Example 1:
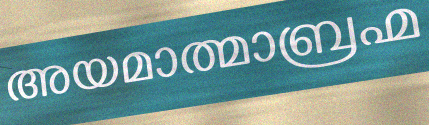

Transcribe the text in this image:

അയമാത്മാബ്രഹ്മ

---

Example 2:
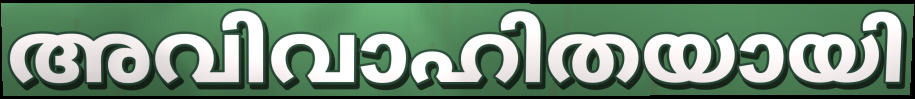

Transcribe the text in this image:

അവിവാഹിതയായി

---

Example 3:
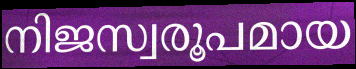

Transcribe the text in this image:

നിജസ്വരൂപമായ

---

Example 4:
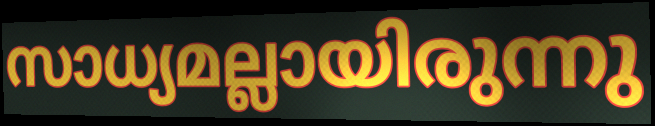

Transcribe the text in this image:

സാധ്യമല്ലായിരുന്നു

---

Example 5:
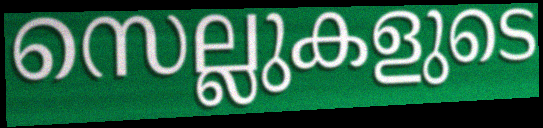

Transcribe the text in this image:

സെല്ലുകളുടെ